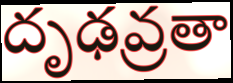
దృఢవ్రతా